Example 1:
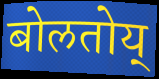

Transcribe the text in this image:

बोलतोय्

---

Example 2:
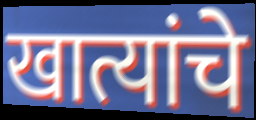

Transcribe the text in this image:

खात्यांचे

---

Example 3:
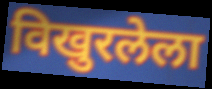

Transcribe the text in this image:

विखुरलेला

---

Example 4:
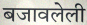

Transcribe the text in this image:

बजावलेली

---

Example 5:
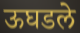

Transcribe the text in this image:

ऊघडले